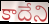
కాదేని